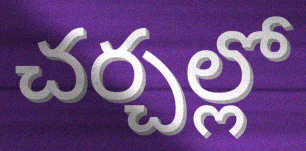
చర్చల్లో